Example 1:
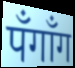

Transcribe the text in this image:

पँगाँग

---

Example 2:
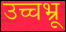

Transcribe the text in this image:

उच्चभ्रू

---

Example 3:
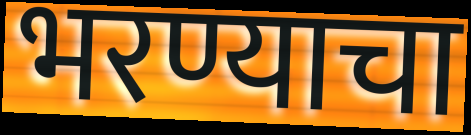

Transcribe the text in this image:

भरण्याचा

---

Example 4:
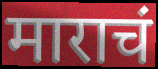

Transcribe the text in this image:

माराचं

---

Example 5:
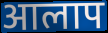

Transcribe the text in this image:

आलाप